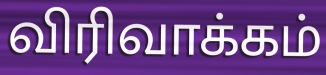
விரிவாக்கம்